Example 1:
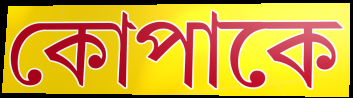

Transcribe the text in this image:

কোপাকে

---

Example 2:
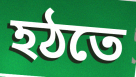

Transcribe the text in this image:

হঠতে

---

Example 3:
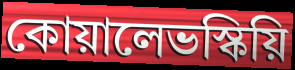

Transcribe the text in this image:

কোয়ালেভস্কিয়ি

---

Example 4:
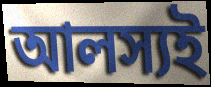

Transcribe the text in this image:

আলস্যই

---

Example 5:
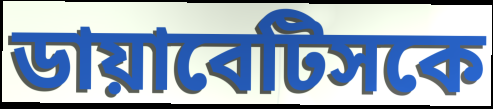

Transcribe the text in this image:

ডায়াবেটিসকে